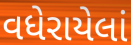
વધેરાયેલાં